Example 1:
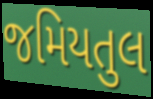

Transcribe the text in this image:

જમિયતુલ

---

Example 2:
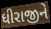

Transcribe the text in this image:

ધીરાજીને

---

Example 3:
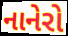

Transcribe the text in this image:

નાનેરો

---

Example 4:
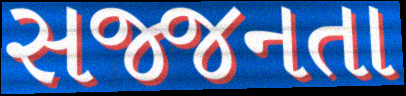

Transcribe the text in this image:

સજ્જનતા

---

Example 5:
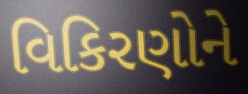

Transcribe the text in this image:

વિકિરણોને